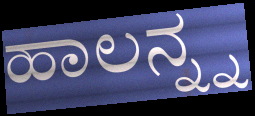
ಹಾಲನ್ನ್ನ